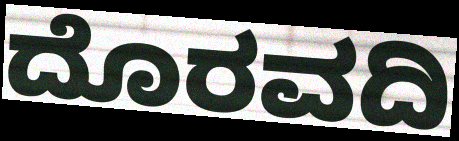
ದೊರವದಿ